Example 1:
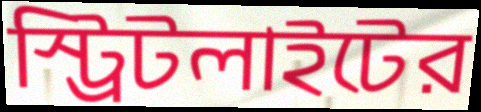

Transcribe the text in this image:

স্ট্রিটলাইটের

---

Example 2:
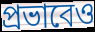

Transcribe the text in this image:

প্রভাবেও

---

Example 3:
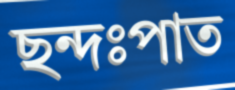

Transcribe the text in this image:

ছন্দঃপাত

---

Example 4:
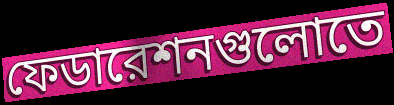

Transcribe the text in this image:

ফেডারেশনগুলোতে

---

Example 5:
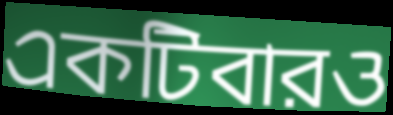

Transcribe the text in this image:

একটিবারও